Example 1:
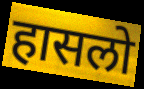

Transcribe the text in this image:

हासलो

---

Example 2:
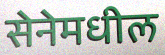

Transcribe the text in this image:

सेनेमधील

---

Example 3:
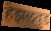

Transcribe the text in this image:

हेझलवुड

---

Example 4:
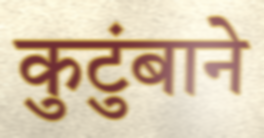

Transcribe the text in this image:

कुटुंबाने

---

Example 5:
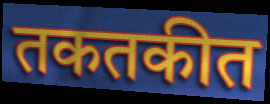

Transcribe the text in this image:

तकतकीत